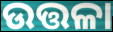
ଉତ୍ତଳା